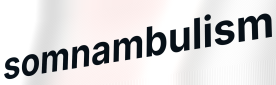
somnambulism